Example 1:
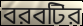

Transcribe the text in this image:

বরবটির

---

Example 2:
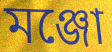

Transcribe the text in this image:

মঞ্জো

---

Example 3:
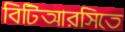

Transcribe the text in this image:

বিটিআরসিতে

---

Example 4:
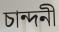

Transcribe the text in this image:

চান্দনী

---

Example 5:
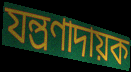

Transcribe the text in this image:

যন্ত্রণাদায়ক